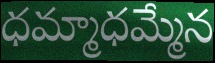
ధమ్మాధమ్మేన